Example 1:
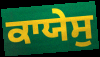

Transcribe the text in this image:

ਕਾਯੇਸੁ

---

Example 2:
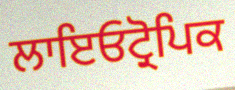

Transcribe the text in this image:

ਲਾਇਓਟ੍ਰੋਪਿਕ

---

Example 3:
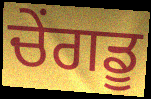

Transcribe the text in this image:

ਚੇਂਗਡੂ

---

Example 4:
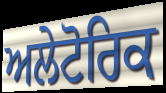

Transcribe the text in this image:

ਅਲੇਟੋਰਿਕ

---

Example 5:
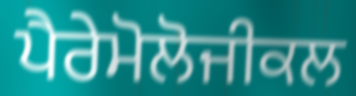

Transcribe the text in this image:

ਪੈਰੇਮੋਲੋਜੀਕਲ